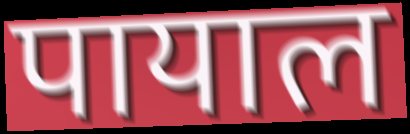
पायाल